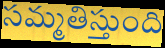
సమ్మతిస్తుంది